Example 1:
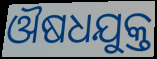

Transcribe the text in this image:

ଔଷଧଯୁକ୍ତ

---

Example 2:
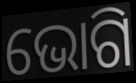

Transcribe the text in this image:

ଭୋଗି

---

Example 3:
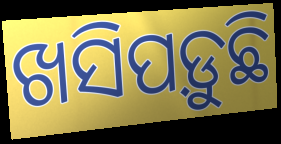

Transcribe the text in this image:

ଖସିପଡ଼ୁଛି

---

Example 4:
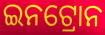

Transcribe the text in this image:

ଇନଟ୍ରୋନ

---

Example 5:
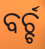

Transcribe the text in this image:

ବର୍ଚ୍ଚ